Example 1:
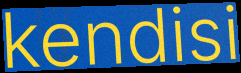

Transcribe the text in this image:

kendisi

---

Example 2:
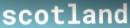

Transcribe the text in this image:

scotland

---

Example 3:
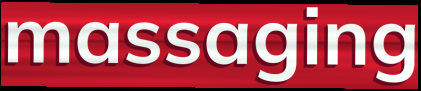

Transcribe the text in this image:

massaging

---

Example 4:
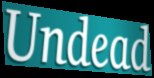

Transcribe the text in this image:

Undead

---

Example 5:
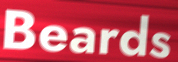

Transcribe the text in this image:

Beards